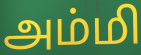
அம்மி